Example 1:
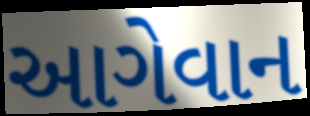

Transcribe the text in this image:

આગેવાન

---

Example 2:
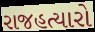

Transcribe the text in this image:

રાજહત્યારો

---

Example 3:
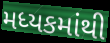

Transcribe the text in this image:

મધ્યકમાંથી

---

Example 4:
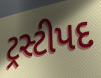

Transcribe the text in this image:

ટ્રસ્ટીપદ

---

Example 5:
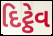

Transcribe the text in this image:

દિટ્ઠેવ